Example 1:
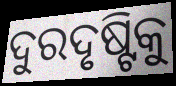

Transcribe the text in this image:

ଦୁରଦୃଷ୍ଟିକୁ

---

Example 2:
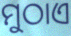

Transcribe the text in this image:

ମୁଠାଏ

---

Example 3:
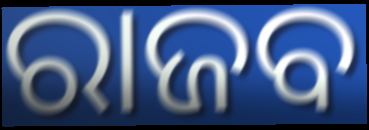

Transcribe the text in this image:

ରାଜବ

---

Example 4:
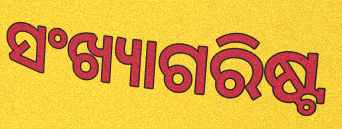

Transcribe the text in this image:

ସଂଖ୍ୟାଗରିଷ୍ଟ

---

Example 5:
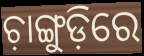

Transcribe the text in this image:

ଚ଼ାଙ୍ଗୁଡ଼ିରେ